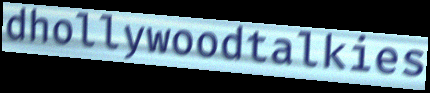
dhollywoodtalkies